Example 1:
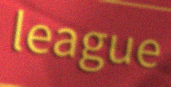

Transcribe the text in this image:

league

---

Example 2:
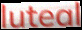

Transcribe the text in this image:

luteal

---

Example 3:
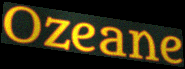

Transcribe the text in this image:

Ozeane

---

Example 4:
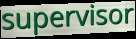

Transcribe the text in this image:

supervisor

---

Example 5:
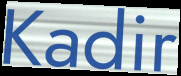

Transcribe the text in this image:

Kadir